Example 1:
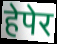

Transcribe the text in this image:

हेपेर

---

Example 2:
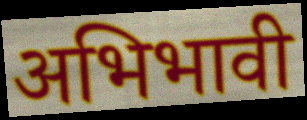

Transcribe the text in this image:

अभिभावी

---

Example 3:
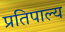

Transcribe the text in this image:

प्रतिपाल्य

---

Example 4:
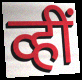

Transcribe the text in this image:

व्हीं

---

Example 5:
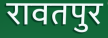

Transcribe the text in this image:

रावतपुर